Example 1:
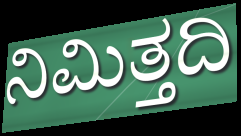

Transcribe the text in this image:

ನಿಮಿತ್ತದಿ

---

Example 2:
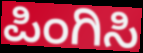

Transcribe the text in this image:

ಪಿಂಗಿಸಿ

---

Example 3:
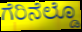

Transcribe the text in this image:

ಗೆರಿನೆಲ್ಡೊ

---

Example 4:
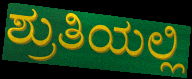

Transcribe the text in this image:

ಶ್ರುತಿಯಲ್ಲಿ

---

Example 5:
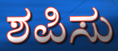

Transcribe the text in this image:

ಶಪಿಸು